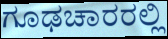
ಗೂಢಚಾರರಲ್ಲಿ